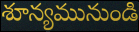
శూన్యమునుండి